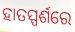
ହାତସ୍ପର୍ଶରେ